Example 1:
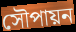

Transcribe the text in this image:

সৌপায়ন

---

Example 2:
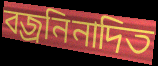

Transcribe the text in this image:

বজ্রনিনাদিত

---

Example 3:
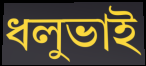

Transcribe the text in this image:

ধলুভাই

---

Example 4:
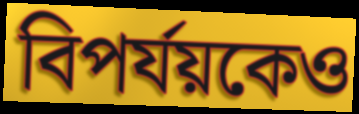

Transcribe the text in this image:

বিপর্যয়কেও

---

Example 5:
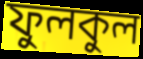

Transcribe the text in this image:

ফুলকুল